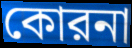
কোরনা